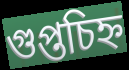
গুপ্তচিহ্ন